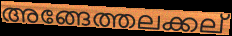
അങ്ങേത്തലക്കല്